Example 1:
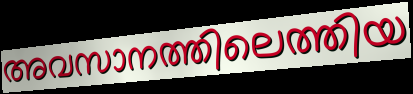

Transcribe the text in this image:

അവസാനത്തിലെത്തിയ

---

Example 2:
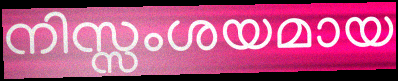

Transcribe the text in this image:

നിസ്സംശയമായ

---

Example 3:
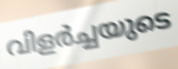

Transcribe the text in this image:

വിളർച്ചയുടെ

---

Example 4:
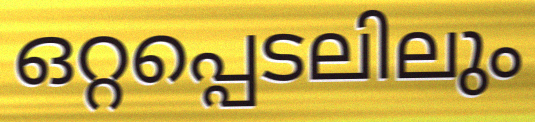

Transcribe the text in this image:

ഒറ്റപ്പെടലിലും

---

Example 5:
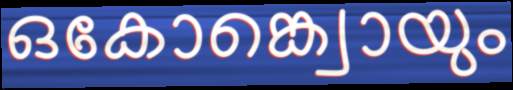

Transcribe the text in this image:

ഒകോങ്ക്വൊയും